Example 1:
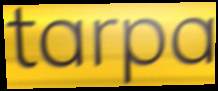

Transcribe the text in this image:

tarpa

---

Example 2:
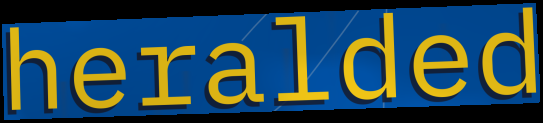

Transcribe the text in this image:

heralded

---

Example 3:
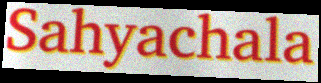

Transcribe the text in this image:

Sahyachala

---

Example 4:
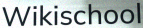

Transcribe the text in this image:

Wikischool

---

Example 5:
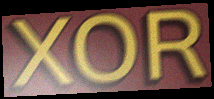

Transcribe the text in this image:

XOR